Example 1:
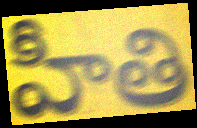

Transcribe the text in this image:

హీతి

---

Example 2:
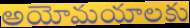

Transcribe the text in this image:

అయోమయాలకు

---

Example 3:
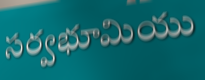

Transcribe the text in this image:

సర్వభూమియు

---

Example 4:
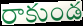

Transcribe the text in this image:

రాకుండ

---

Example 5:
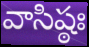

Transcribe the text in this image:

వాసిష్ఠః